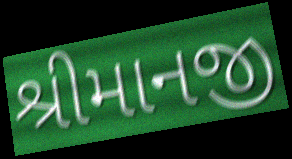
શ્રીમાનજી